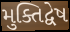
મુક્તિદ્વેષ